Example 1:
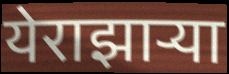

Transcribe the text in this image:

येराझाऱ्या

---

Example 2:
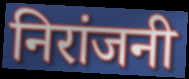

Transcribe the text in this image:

निरांजनी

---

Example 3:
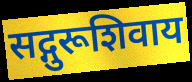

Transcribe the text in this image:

सद्गुरूशिवाय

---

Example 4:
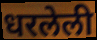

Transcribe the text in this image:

धरलेली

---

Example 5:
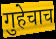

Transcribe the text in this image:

गुहेचाच